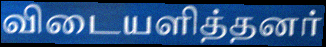
விடையளித்தனர்